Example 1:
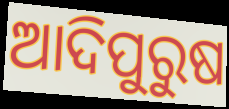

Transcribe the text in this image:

ଆଦିପୁରୁଷ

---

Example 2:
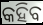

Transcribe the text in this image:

କହିବ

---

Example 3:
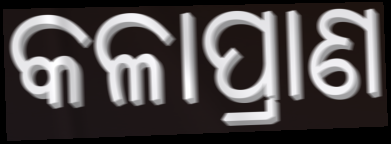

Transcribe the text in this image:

କଳାପ୍ରାଣ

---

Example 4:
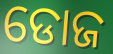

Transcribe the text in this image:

ଡୋଜ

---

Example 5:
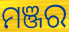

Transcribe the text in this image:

ମଞ୍ଜର